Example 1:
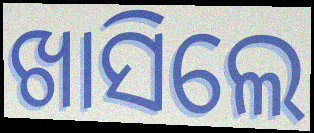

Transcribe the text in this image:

ଖାସିଲେ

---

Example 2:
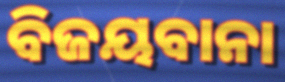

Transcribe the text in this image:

ବିଜୟବାନା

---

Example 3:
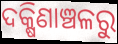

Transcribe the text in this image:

ଦକ୍ଷିଣାଞ୍ଚଳରୁ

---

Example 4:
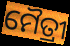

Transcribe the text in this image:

ମୈତ୍ରୀ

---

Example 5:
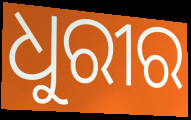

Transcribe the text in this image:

ଧୁରୀର